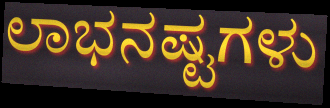
ಲಾಭನಷ್ಟಗಳು